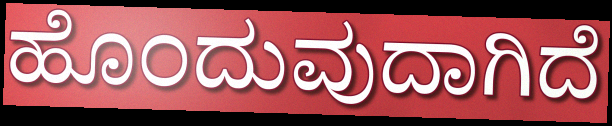
ಹೊಂದುವುದಾಗಿದೆ